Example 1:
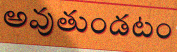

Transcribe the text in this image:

అవుతుండటం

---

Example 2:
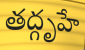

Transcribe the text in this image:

తద్గృహే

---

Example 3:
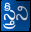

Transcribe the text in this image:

స్త్రీని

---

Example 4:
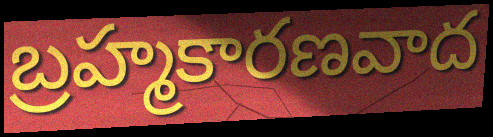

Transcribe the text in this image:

బ్రహ్మకారణవాద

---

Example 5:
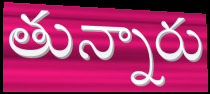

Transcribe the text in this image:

తున్నారు